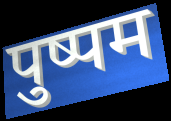
पुष्पम